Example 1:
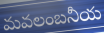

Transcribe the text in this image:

మవలంబనీయ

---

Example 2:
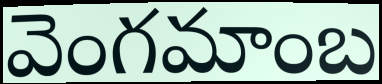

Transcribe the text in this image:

వెంగమాంబ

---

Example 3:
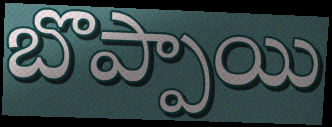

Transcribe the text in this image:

బొప్పాయి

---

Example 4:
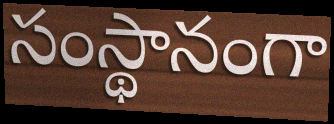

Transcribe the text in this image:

సంస్థానంగా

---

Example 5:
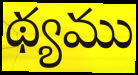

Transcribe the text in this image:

థ్యము